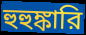
হুহুঙ্কারি